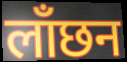
लाँछन